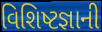
વિશિષ્ટજ્ઞાની